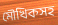
মৌখিকসহ